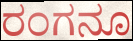
ರಂಗನೂ